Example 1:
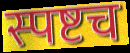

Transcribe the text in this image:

स्पष्टच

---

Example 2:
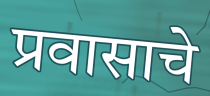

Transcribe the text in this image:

प्रवासाचे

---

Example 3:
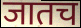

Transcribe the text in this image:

जातच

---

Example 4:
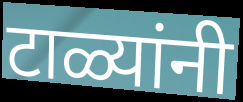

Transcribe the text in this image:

टाळ्यांनी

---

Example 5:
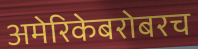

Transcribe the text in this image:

अमेरिकेबरोबरच